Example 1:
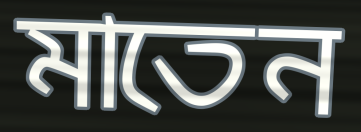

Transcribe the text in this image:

মাতেন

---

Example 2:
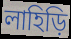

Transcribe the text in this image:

লাহিড়ি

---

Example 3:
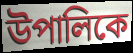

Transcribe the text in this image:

উপালিকে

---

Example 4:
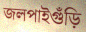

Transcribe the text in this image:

জলপাইগুঁড়ি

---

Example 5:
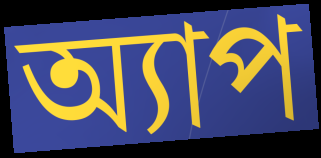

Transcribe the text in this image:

অ্যাপ